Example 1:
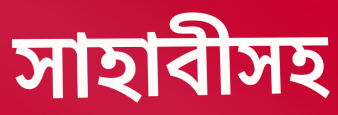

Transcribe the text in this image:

সাহাবীসহ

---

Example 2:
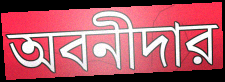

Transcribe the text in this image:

অবনীদার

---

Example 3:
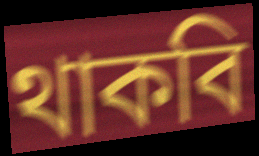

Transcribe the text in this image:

থাকবি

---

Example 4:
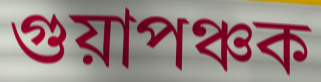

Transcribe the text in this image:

গুয়াপঞ্চক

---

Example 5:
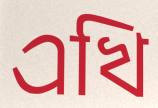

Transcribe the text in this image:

এখি